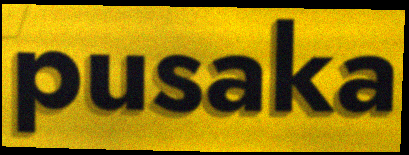
pusaka